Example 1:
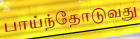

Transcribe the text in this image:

பாய்ந்தோடுவது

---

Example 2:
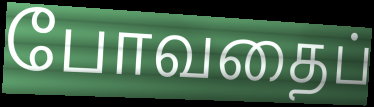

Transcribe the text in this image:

போவதைப்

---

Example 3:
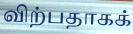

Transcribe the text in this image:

விற்பதாகக்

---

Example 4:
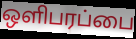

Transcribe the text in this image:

ஒளிபரப்பை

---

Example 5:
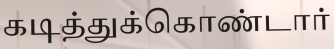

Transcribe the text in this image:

கடித்துக்கொண்டார்